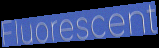
Fluorescent